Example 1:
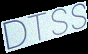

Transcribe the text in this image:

DTSS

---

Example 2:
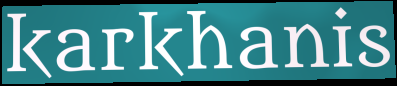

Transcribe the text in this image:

karkhanis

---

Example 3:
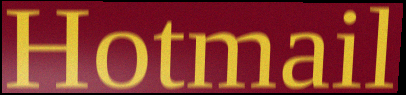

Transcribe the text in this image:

Hotmail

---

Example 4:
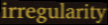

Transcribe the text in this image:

irregularity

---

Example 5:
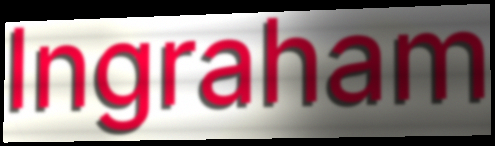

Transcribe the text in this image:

Ingraham